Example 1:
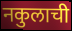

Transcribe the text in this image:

नकुलाची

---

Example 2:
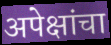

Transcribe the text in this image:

अपेक्षांचा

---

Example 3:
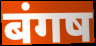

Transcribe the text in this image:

बंगष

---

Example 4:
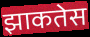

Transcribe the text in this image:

झाकतेस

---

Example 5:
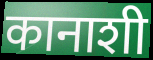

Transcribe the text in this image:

कानाशी